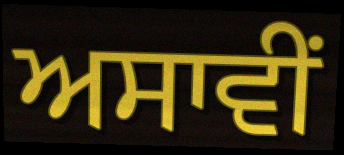
ਅਸਾਵੀਂ